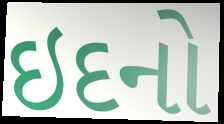
ઇદનો